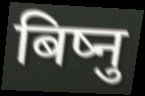
बिष्नु